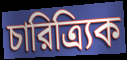
চারিত্র্যিক